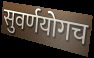
सुवर्णयोगच